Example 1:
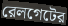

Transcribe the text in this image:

রেলগেটের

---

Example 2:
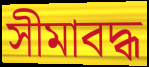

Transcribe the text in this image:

সীমাবদ্ধ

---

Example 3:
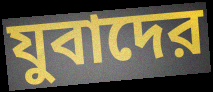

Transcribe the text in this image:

যুবাদের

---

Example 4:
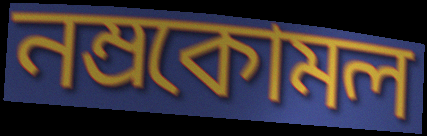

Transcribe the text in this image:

নম্রকোমল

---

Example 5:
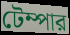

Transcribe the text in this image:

টেম্পার